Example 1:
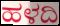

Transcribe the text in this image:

ಹಳದಿ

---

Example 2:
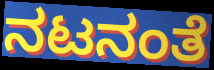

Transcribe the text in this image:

ನಟನಂತೆ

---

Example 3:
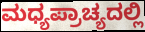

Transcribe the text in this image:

ಮಧ್ಯಪ್ರಾಚ್ಯದಲ್ಲಿ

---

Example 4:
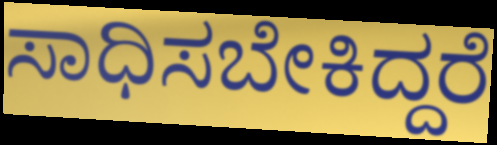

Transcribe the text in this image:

ಸಾಧಿಸಬೇಕಿದ್ದರೆ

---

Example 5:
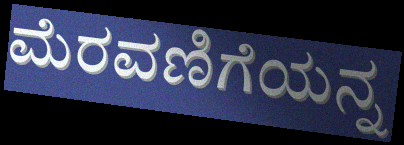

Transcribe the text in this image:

ಮೆರವಣಿಗೆಯನ್ನ